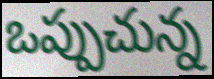
ఒప్పుచున్న